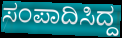
ಸಂಪಾದಿಸಿದ್ದ